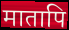
मातापि